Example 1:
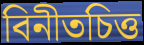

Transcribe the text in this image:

বিনীতচিত্ত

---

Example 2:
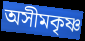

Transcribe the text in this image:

অসীমকৃষ্ণ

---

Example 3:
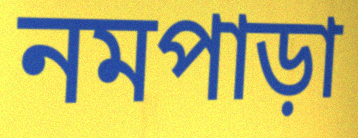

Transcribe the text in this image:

নমপাড়া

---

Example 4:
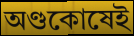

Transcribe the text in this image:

অণ্ডকোষেই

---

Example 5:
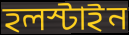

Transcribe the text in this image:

হলস্টাইন